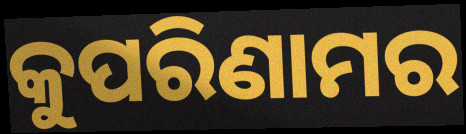
କୁପରିଣାମର